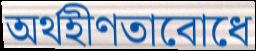
অর্থহীণতাবোধে